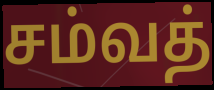
சம்வத்